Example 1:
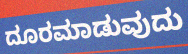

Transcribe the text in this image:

ದೂರಮಾಡುವುದು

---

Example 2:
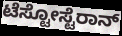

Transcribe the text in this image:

ಟೆಸ್ಟೋಸ್ಟೆರಾನ್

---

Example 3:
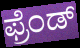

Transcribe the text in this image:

ಫ್ರೆಂಡ್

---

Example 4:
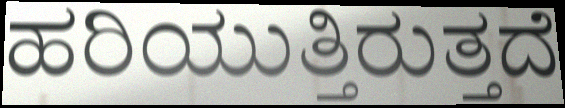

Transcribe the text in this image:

ಹರಿಯುತ್ತಿರುತ್ತದೆ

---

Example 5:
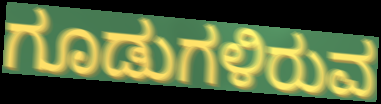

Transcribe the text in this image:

ಗೂಡುಗಳಿರುವ